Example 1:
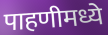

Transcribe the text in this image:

पाहणीमध्ये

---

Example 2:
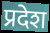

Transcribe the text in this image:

प्रदेश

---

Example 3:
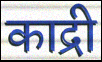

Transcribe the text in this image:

काद्री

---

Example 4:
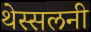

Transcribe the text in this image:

थेस्सलनी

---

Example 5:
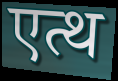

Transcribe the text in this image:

एत्थ